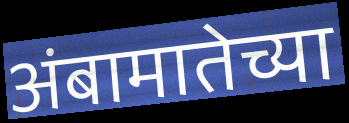
अंबामातेच्या